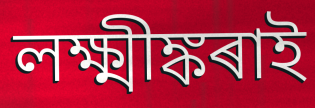
লক্ষ্মীঙ্কৰাই